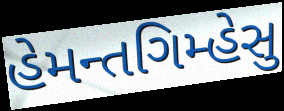
હેમન્તગિમ્હેસુ